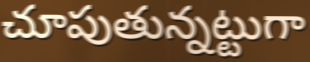
చూపుతున్నట్టుగా